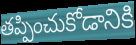
తప్పించుకోడానికి